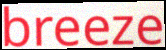
breeze